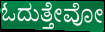
ಓದುತ್ತೇವೋ